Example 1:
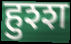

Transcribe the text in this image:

हुश्श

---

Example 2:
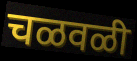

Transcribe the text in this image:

चळवळी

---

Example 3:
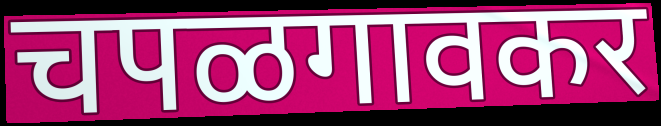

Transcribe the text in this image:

चपळगावकर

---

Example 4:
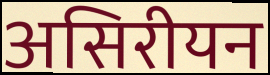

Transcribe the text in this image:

असिरीयन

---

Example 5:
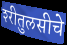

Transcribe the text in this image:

श्रीतुलसीचे